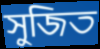
সুজিত